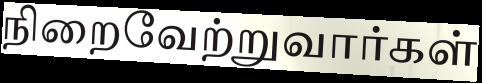
நிறைவேற்றுவார்கள்